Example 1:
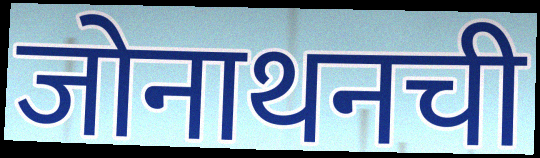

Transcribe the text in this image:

जोनाथनची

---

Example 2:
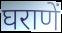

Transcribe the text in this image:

घराणें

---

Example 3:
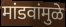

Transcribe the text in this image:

मांडवांमुळे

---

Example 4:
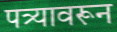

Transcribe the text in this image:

पत्र्यावरून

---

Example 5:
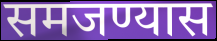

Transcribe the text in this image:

समजण्यास